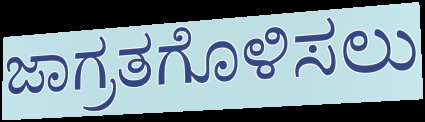
ಜಾಗ್ರತಗೊಳಿಸಲು